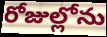
రోజుల్లోను